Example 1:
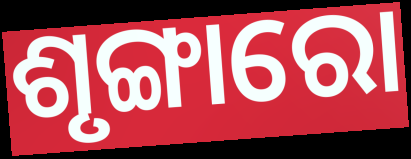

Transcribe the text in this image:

ଶୃଙ୍ଗାରୋ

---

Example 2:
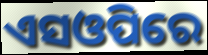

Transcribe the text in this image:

ଏସଓପିରେ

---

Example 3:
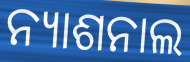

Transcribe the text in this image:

ନ୍ୟାଶନାଲ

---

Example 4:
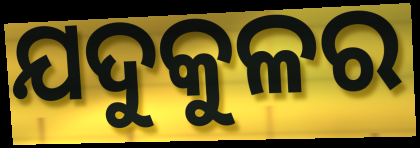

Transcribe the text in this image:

ଯଦୁକୁଳର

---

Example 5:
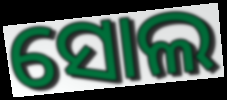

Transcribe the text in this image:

ସୋଲ